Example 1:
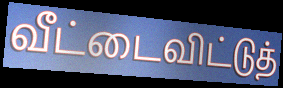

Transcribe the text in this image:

வீட்டைவிட்டுத்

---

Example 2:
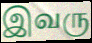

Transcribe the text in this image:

இவரு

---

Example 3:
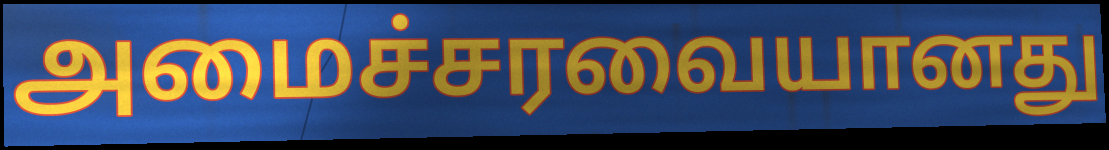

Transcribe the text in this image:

அமைச்சரவையானது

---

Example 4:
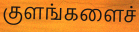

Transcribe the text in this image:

குளங்களைச்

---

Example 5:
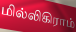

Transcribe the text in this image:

மில்லிகிராம்